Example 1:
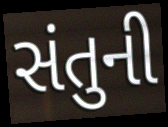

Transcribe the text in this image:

સંતુની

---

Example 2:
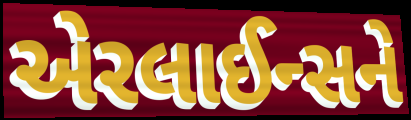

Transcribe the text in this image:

એરલાઈન્સને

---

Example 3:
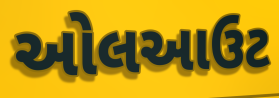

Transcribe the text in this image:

ઓલઆઉટ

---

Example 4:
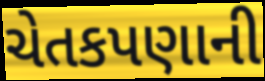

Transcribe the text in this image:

ચેતકપણાની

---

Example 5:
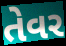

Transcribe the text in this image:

તેવર